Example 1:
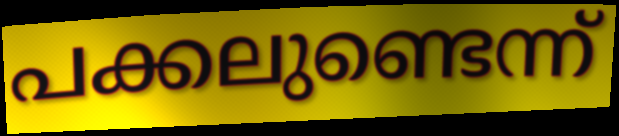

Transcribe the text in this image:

പക്കലുണ്ടെന്ന്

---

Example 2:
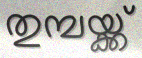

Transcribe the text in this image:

തുമ്പയ്ക്ക്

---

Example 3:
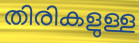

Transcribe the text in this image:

തിരികളുള്ള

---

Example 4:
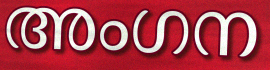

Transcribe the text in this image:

അംഗന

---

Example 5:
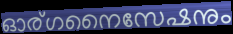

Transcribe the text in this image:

ഓര്ഗനൈസേഷനും